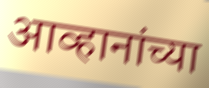
आव्हानांच्या